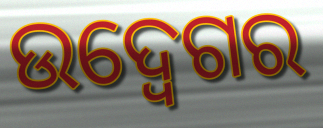
ଉଦ୍ବେଗର